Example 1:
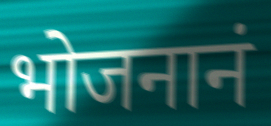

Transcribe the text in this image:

भोजनानं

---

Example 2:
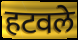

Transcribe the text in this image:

हटवले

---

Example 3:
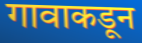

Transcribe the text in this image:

गावाकडून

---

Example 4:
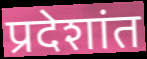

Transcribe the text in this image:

प्रदेशांत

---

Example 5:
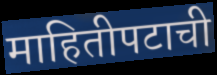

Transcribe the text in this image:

माहितीपटाची